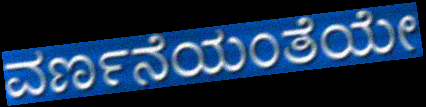
ವರ್ಣನೆಯಂತೆಯೇ